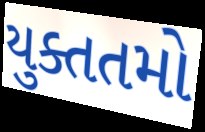
યુક્તતમો